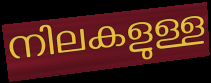
നിലകളുള്ള